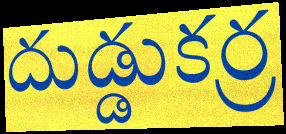
దుడ్డుకర్ర